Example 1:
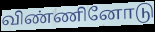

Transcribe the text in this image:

விண்ணினோடு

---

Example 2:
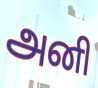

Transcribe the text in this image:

அனி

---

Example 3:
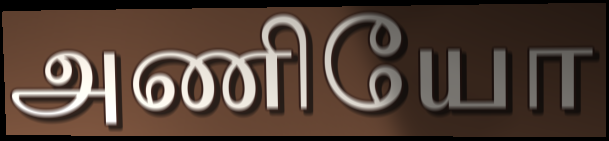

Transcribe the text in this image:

அணியோ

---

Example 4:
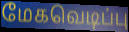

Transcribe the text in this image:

மேகவெடிப்பு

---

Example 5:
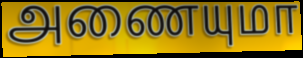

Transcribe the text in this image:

அணையுமா